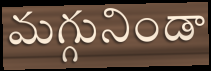
మగ్గునిండా